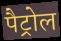
पैट्रोल